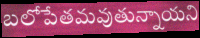
బలోపేతమవుతున్నాయని